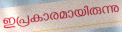
ഇപ്രകാരമായിരുന്നു